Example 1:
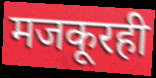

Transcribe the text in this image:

मजकूरही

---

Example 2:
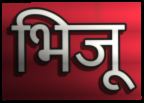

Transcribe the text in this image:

भिजू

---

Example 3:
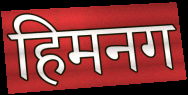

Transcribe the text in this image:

हिमनग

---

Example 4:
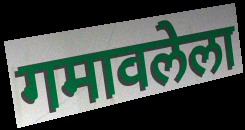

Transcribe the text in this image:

गमावलेला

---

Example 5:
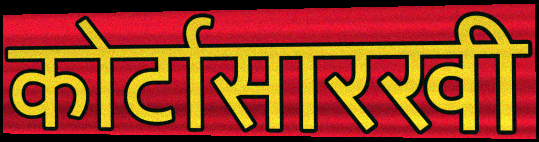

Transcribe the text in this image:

कोर्टासारखी